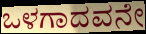
ಒಳಗಾದವನೇ